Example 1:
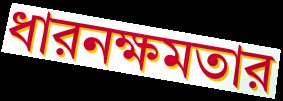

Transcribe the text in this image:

ধারনক্ষমতার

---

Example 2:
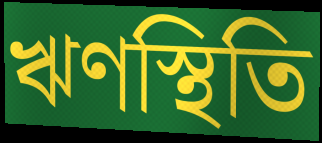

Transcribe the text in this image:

ঋণস্থিতি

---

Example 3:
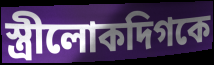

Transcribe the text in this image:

স্ত্রীলোকদিগকে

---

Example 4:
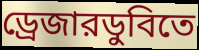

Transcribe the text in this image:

ড্রেজারডুবিতে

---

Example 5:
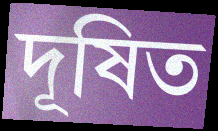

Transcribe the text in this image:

দূষিত